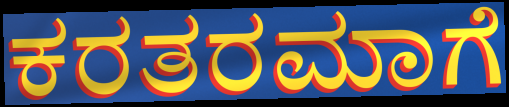
ಕರತರಮಾಗೆ